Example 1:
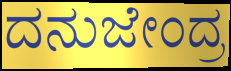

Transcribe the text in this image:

ದನುಜೇಂದ್ರ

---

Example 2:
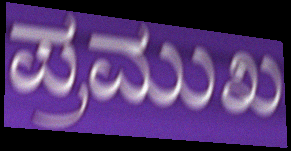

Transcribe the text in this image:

ಪ್ರಮುಖ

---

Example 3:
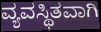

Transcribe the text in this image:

ವ್ಯವಸ್ಥಿತವಾಗಿ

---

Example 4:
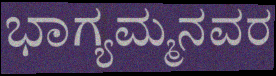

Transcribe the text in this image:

ಭಾಗ್ಯಮ್ಮನವರ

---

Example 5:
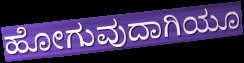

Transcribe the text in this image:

ಹೋಗುವುದಾಗಿಯೂ